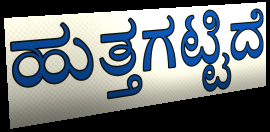
ಹುತ್ತಗಟ್ಟಿದೆ